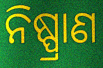
ନିଷ୍ପ୍ରାଣ